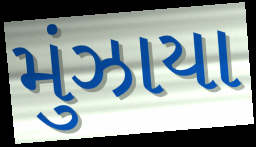
મુંઝાયા